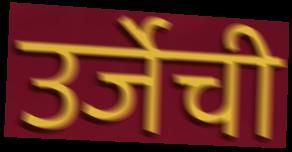
उर्जेची